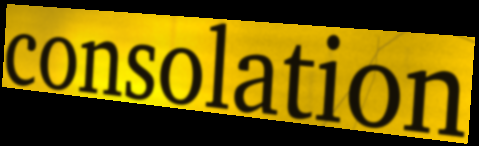
consolation